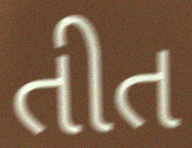
તીત